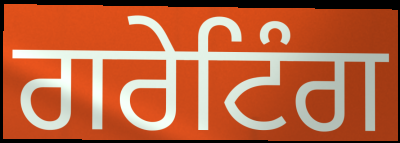
ਗਰੇਟਿੰਗ